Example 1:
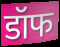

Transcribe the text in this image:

डॉफ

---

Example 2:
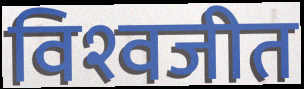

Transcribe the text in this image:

विश्वजीत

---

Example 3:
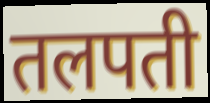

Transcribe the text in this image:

तलपती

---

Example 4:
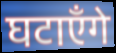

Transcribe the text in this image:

घटाएँगे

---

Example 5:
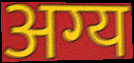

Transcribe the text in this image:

अग्य